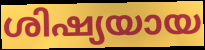
ശിഷ്യയായ